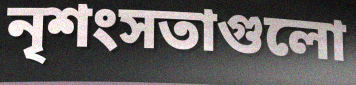
নৃশংসতাগুলো